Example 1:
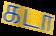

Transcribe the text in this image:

கடா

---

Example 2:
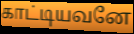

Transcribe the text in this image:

காட்டியவனே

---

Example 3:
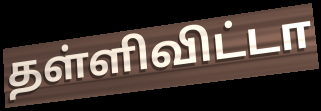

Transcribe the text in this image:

தள்ளிவிட்டா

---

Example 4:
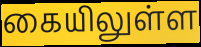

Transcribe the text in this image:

கையிலுள்ள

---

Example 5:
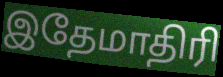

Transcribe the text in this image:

இதேமாதிரி